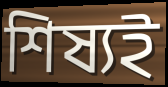
শিষ্যই